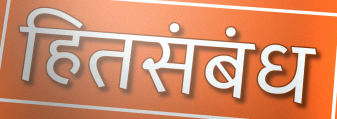
हितसंबंध